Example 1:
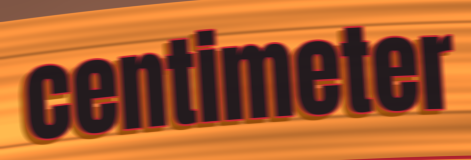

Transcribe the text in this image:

centimeter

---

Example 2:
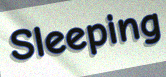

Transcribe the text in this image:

Sleeping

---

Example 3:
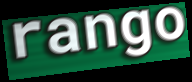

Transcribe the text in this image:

rango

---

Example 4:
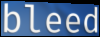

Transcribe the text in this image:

bleed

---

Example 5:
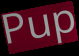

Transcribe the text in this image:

Pup